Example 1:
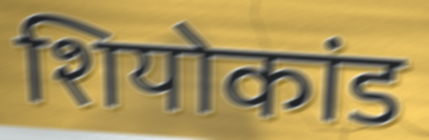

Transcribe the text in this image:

शियोकांड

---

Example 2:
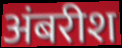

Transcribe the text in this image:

अंबरीश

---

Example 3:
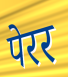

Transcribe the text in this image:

पेरर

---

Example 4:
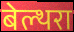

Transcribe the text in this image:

बेल्थरा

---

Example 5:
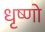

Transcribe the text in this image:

धृष्णो